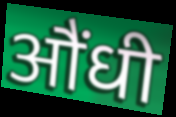
औंधी